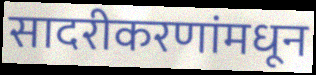
सादरीकरणांमधून